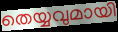
തെയ്യവുമായി